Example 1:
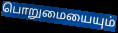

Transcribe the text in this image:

பொறுமையையும்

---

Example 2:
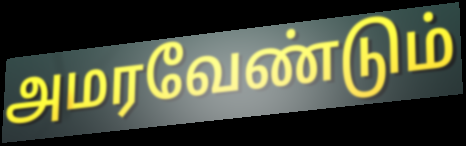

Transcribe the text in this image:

அமரவேண்டும்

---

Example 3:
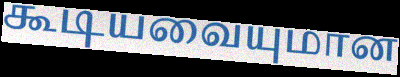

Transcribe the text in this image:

கூடியவையுமான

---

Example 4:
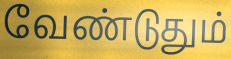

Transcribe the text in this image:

வேண்டுதும்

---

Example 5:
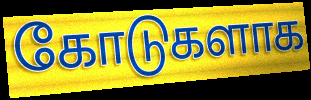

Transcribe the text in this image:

கோடுகளாக